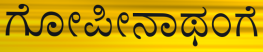
ಗೋಪೀನಾಥಂಗೆ